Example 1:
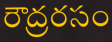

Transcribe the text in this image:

రౌద్రరసం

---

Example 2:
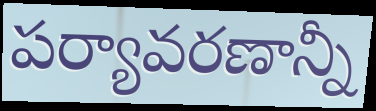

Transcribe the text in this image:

పర్యావరణాన్నీ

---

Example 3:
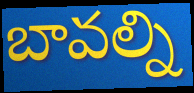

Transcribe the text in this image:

బావల్ని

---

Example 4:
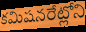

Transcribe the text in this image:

కమిషనరేట్లోని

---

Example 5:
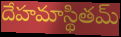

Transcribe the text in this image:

దేహమాస్థితమ్